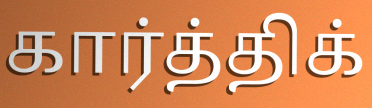
கார்த்திக்